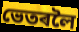
ভেতৰলৈ